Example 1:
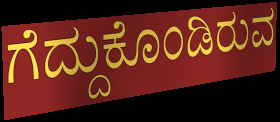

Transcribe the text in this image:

ಗೆದ್ದುಕೊಂಡಿರುವ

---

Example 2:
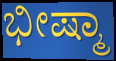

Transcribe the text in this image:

ಭೀಷ್ಮಾ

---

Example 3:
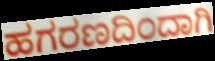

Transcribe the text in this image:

ಹಗರಣದಿಂದಾಗಿ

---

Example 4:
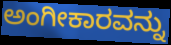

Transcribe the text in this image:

ಅಂಗೀಕಾರವನ್ನು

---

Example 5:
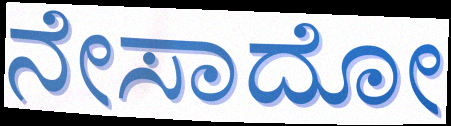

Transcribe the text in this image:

ನೇಸಾದೋ